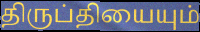
திருப்தியையும்